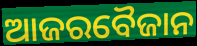
ଆଜରବୈଜାନ